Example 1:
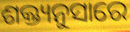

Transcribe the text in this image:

ଶକ୍ତ୍ୟନୁସାରେ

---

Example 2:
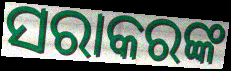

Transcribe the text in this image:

ସରାକରଙ୍କ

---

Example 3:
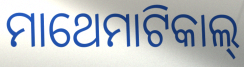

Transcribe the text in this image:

ମାଥେମାଟିକାଲ୍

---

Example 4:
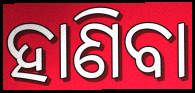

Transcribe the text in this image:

ହାଣିବା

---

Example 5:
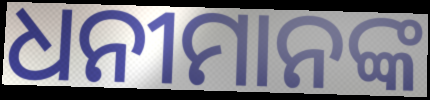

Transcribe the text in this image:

ଧନୀମାନଙ୍କ